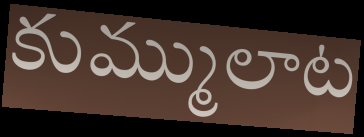
కుమ్ములాట